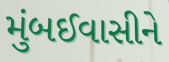
મુંબઈવાસીને